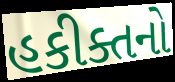
હકીક્તનો